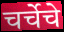
चर्चेचे